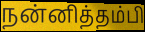
நன்னித்தம்பி